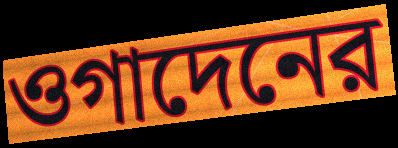
ওগাদেনের